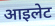
आइलेट